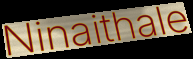
Ninaithale